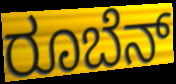
ರೂಬೆನ್